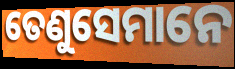
ତେଣୁସେମାନେ